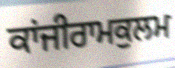
ਕਾਂਜੀਰਾਮਕੁਲਮ